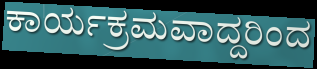
ಕಾರ್ಯಕ್ರಮವಾದ್ದರಿಂದ